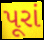
પૂરાં